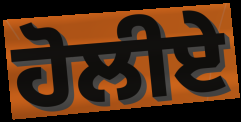
ਹੋਲੀਏ